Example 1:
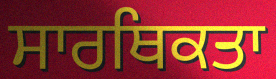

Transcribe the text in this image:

ਸਾਰਥਿਕਤਾ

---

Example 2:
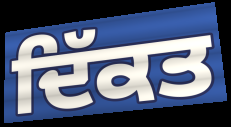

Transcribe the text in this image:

ਦਿੱਕਤ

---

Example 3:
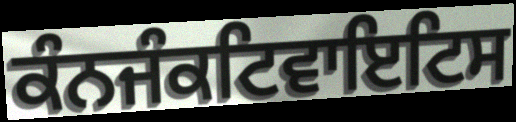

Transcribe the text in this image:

ਕੰਨਜੰਕਟਿਵਾਇਟਿਸ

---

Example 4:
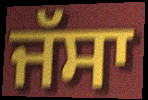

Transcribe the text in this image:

ਜੱਸਾ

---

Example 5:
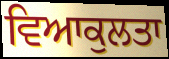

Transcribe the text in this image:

ਵਿਆਕੁਲਤਾ